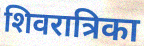
शिवरात्रिका